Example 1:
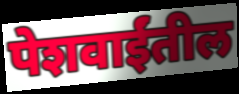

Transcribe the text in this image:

पेशवाईंतील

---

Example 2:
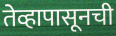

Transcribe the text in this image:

तेव्हापासूनची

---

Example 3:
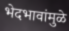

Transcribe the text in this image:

भेदभावांमुळे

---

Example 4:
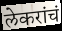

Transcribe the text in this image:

लेकरांचं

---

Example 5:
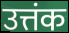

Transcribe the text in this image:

उत्तंक